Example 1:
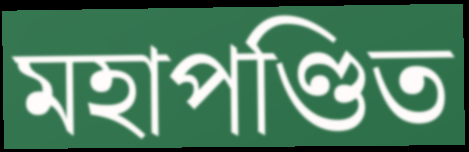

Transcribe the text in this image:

মহাপণ্ডিত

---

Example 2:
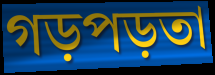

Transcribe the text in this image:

গড়পড়তা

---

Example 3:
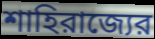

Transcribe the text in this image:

শাহিরাজ্যের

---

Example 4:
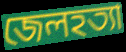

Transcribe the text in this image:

জেলহত্যা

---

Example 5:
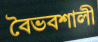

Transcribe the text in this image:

বৈভবশালী